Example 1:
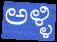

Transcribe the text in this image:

ಅಳ್ಳಿ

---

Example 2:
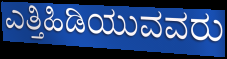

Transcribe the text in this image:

ಎತ್ತಿಹಿಡಿಯುವವರು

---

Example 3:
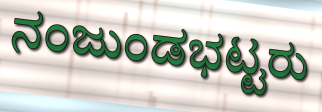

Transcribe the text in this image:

ನಂಜುಂಡಭಟ್ಟರು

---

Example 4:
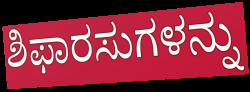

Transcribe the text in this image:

ಶಿಫಾರಸುಗಳನ್ನು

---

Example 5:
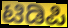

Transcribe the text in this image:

ಟಿಡಿಪಿ